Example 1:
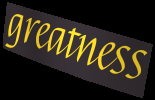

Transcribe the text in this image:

greatness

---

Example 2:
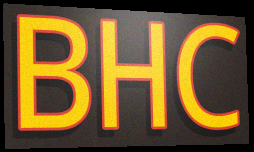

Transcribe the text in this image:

BHC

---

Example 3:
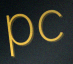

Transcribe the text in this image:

pc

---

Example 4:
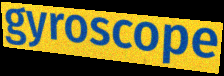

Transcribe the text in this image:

gyroscope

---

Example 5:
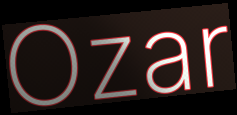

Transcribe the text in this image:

Ozar